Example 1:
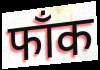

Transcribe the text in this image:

फाँक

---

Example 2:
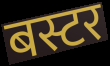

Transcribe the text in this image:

बस्टर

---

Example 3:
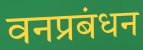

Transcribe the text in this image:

वनप्रबंधन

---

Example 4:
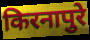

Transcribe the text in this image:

किरनापुरे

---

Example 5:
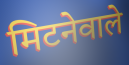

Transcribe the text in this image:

मिटनेवाले